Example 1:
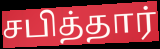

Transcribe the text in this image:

சபித்தார்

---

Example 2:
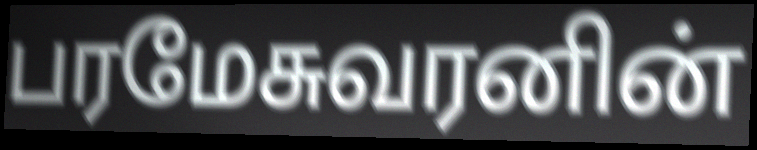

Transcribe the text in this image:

பரமேசுவரனின்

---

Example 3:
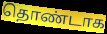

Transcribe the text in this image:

தொண்டாக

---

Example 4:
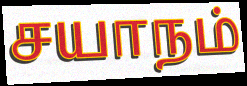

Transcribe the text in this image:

சயாநம்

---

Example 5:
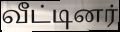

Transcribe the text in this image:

வீட்டினர்